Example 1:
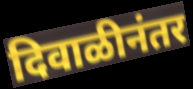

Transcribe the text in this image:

दिवाळीनंतर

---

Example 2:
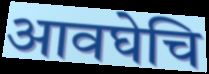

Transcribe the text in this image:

आवघेचि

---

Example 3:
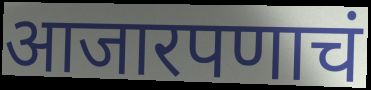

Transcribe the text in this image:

आजारपणाचं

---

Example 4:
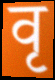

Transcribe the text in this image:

वृ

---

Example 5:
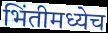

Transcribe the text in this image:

भिंतीमध्येच